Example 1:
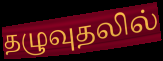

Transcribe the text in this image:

தழுவுதலில்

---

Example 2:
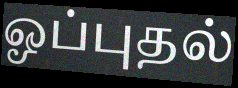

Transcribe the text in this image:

ஓப்புதல்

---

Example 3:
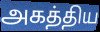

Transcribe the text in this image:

அகத்திய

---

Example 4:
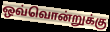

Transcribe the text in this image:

ஒவ்வொன்றுக்கு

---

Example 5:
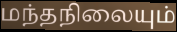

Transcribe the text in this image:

மந்தநிலையும்